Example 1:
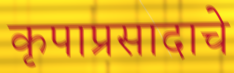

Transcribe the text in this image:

कृपाप्रसादाचे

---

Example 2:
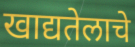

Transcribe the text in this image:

खाद्यतेलाचे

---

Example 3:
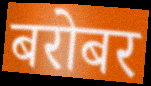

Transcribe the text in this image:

बरोबर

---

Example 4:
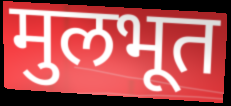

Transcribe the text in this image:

मुलभूत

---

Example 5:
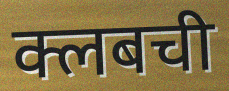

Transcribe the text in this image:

क्लबची